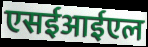
एसईआईएल